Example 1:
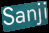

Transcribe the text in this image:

Sanji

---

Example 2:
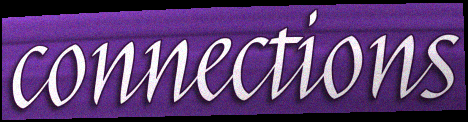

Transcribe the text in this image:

connections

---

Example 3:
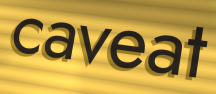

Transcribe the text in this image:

caveat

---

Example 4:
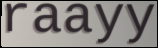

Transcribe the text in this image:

raayy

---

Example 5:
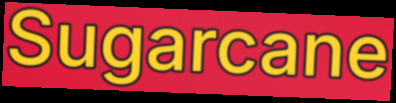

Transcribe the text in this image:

Sugarcane